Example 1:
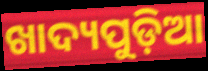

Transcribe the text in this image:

ଖାଦ୍ୟପୁଡ଼ିଆ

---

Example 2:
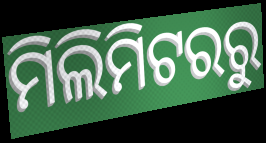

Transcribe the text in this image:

ମିଲିମିଟରରୁ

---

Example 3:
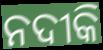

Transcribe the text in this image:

ନଦୀକି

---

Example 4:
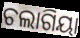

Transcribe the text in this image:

ଚଲାଗିୟା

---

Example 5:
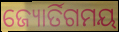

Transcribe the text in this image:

ଜ୍ୟୋର୍ତିଗମୟ